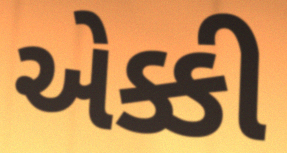
એક્કી